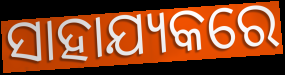
ସାହାଯ୍ୟକରେ